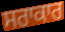
ਸਰਾਕਾਰ